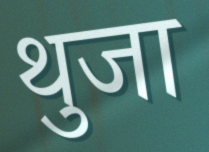
थुजा